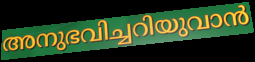
അനുഭവിച്ചറിയുവാൻ